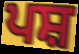
ਪਸ਼